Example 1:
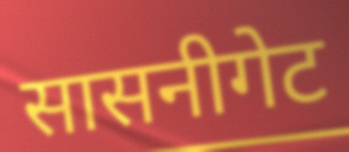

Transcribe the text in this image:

सासनीगेट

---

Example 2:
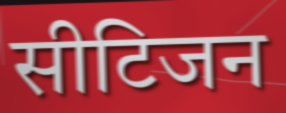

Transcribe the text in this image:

सीटिजन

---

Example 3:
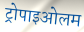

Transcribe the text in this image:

ट्रोपाइओलम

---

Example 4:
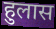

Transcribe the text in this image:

हुलास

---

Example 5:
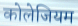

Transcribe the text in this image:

कोलेजियम